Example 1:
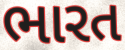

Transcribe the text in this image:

ભારત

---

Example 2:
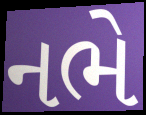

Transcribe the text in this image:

નભે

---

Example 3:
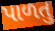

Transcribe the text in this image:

પાળતુ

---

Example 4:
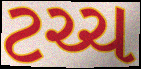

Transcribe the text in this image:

ટચ્ચ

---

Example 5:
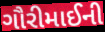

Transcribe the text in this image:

ગૌરીમાઈની